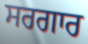
ਸਰਗਾਰ